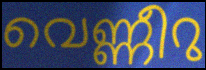
വെണ്ണീറു